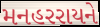
મનહરરાયને